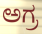
ಅಗ್ರ